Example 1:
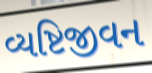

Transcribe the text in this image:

વ્યષ્ટિજીવન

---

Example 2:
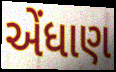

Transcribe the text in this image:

એંધાણ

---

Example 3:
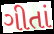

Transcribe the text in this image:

ગીતાં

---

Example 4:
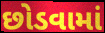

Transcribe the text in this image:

છોડવામાં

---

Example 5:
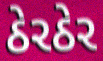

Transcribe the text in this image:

ઠેરઠેર